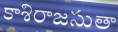
కాశిరాజసుతా